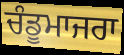
ਚੰਡੂਮਾਜਰਾ